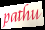
pathu